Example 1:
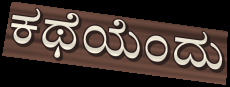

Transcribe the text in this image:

ಕಥೆಯೆಂದು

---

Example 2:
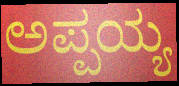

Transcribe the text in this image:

ಅಪ್ಪಯ್ಯ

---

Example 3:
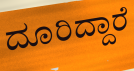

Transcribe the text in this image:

ದೂರಿದ್ದಾರೆ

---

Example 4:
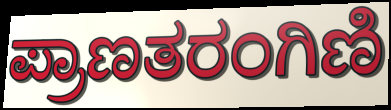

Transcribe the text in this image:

ಪ್ರಾಣತರಂಗಿಣಿ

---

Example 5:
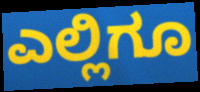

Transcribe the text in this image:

ಎಲ್ಲಿಗೂ